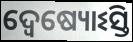
ଦ୍ୱେଷ୍ୟୋଽସ୍ତି